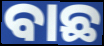
ବାଛ